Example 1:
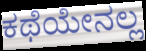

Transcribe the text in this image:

ಕಥೆಯೇನಲ್ಲ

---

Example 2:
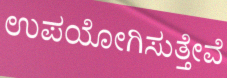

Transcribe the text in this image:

ಉಪಯೋಗಿಸುತ್ತೇವೆ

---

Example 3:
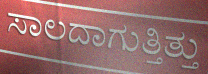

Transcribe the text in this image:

ಸಾಲದಾಗುತ್ತಿತ್ತು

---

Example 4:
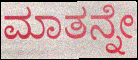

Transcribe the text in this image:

ಮಾತನ್ನೇ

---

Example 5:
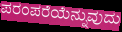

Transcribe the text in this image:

ಪರಂಪರೆಯೆನ್ನುವುದು